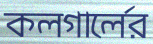
কলগার্লের